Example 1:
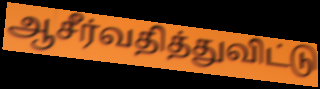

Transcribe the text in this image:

ஆசீர்வதித்துவிட்டு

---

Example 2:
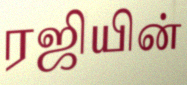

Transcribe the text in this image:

ரஜியின்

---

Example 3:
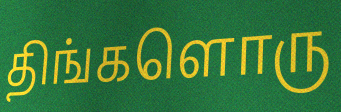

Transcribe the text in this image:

திங்களொரு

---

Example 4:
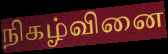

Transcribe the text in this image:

நிகழ்வினை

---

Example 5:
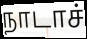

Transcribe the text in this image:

நாடாச்